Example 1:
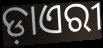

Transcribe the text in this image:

ଡ଼ାଏରୀ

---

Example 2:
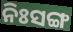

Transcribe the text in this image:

ନିଃସଙ୍ଗ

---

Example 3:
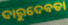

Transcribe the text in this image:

ଦାରୁଦେବତା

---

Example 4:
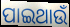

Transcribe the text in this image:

ପାଇଥାଉଁ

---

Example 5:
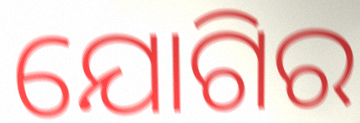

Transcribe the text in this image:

ଯୋଗିର